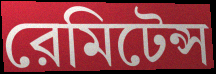
রেমিটেন্স